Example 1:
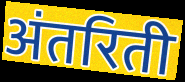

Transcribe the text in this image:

अंतरिती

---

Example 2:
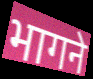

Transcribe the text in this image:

भागने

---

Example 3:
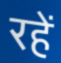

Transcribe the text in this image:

रहें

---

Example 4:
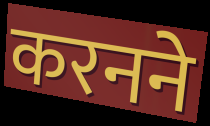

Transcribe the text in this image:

करनने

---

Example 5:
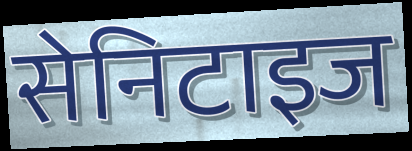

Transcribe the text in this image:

सेनिटाइज